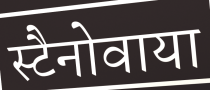
स्टैनोवाया